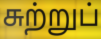
சுற்றுப்